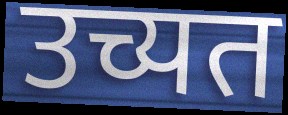
उच्यत